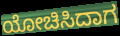
ಯೋಚಿಸಿದಾಗ